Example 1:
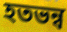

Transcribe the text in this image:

হতভন্ব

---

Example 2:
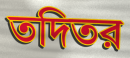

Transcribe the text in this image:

তদিতর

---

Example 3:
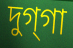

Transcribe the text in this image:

দুগ্‌গা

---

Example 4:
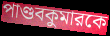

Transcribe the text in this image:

পাণ্ডবকুমারকে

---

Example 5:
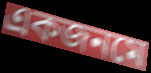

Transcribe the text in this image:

একজনমে